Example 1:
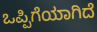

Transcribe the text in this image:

ಒಪ್ಪಿಗೆಯಾಗಿದೆ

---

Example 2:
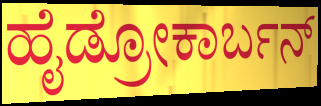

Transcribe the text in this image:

ಹೈಡ್ರೋಕಾರ್ಬನ್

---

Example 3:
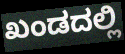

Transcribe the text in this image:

ಖಂಡದಲ್ಲಿ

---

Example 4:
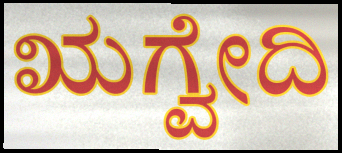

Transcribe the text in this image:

ಋಗ್ವೇದಿ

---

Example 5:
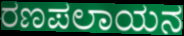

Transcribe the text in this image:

ರಣಪಲಾಯನ